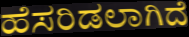
ಹೆಸರಿಡಲಾಗಿದೆ